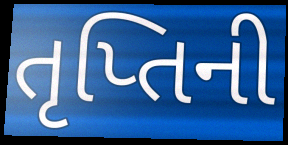
તૃપ્તિની